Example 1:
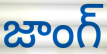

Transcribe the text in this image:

జాంగ్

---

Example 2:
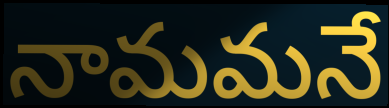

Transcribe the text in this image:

నామమనే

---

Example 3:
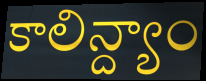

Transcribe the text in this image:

కాలిన్ద్యాం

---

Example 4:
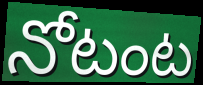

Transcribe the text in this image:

నోటంట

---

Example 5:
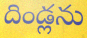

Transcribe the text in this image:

దిండ్లను